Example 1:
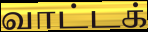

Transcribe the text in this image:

வாட்டக்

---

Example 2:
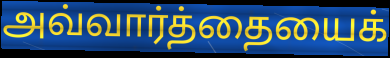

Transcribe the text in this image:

அவ்வார்த்தையைக்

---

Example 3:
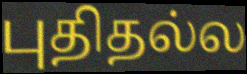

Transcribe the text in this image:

புதிதல்ல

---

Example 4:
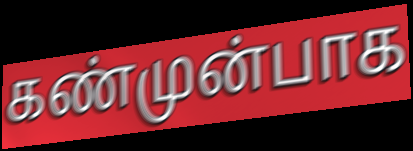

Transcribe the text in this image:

கண்முன்பாக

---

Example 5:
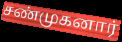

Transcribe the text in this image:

சண்முகனார்